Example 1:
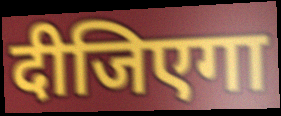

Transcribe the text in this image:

दीजिएगा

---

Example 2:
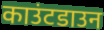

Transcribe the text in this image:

काउंटडाउन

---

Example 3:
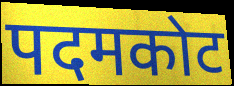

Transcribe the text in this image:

पदमकोट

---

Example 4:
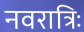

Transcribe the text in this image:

नवरात्रिः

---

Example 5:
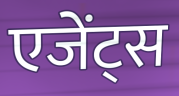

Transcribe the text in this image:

एजेंट्स